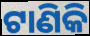
ଟାଣିକି